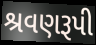
શ્રવણરૂપી